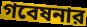
গবেষনার